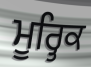
ਮੂਰ੍ਤਿਕ